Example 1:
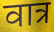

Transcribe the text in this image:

वात्र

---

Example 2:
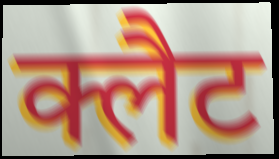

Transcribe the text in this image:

क्लैट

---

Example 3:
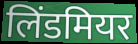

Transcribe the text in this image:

लिंडमियर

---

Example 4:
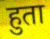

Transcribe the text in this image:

हुता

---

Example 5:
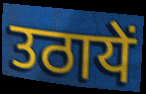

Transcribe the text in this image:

उठायें